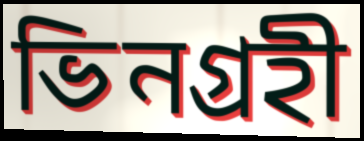
ভিনগ্রহী